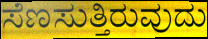
ಸೆಣಸುತ್ತಿರುವುದು